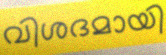
വിശദമായി